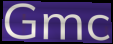
Gmc